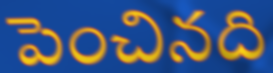
పెంచినది